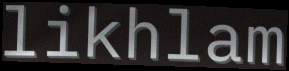
likhlam